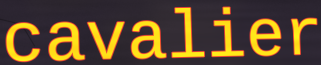
cavalier